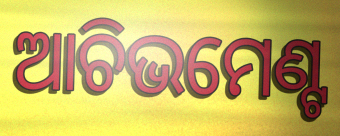
ଆଚିଭମେଣ୍ଟ